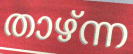
താഴ്ന്ന